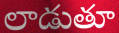
లాడుతూ